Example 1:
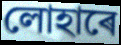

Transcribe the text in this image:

লোহাৰে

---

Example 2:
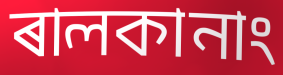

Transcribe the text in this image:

ৰালকানাং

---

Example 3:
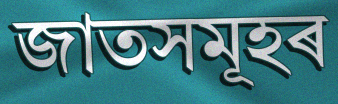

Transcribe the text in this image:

জাতসমূহৰ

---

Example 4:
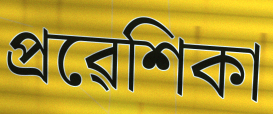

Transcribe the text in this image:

প্ৰৱেশিকা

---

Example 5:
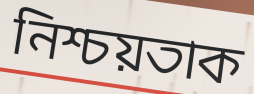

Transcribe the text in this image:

নিশ্চয়তাক